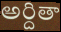
అర్దితా